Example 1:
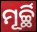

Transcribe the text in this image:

ମୂର୍ଚ୍ଛି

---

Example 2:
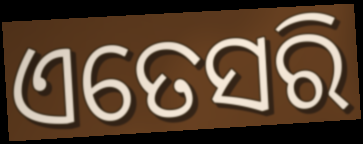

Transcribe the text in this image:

ଏତେସରି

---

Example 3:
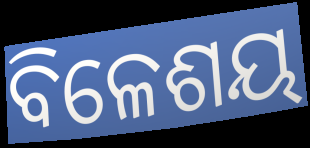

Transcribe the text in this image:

ବିଳେଶୟ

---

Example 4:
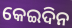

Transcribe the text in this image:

କେଇଦିନ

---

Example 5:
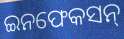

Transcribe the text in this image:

ଇନଫେକସନ୍